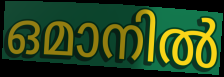
ഒമാനിൽ